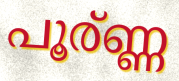
പൂര്ണ്ണ